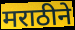
मराठीने